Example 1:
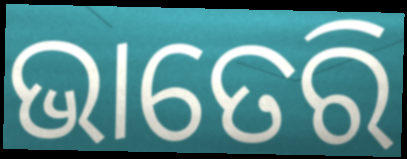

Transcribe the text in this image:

ଭାତେରି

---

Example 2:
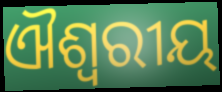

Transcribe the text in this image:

ଐଶ୍ୱରୀୟ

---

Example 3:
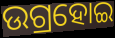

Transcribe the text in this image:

ଉଗ୍ରହୋଇ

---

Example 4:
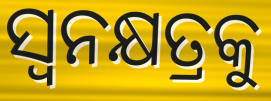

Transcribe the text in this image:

ସ୍ୱନକ୍ଷତ୍ରକୁ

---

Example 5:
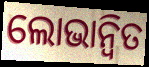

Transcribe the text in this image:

ଲୋଭାନ୍ୱିତ